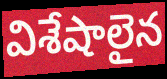
విశేషాలైన